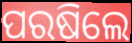
ପରଷିଲେ